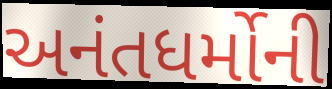
અનંતધર્મોની